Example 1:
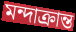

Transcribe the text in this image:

মন্দাক্রান্ত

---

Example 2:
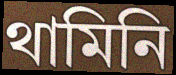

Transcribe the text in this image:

থামিনি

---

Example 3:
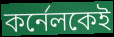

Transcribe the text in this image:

কর্নেলকেই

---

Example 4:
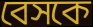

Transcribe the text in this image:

বেসকে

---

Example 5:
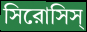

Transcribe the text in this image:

সিরোসিস্